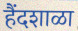
हैंदशाळा